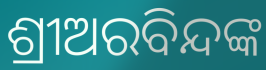
ଶ୍ରୀଅରବିନ୍ଦଙ୍କ